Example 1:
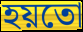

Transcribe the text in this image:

হয়তো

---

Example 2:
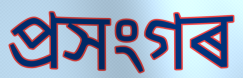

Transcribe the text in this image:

প্ৰসংগৰ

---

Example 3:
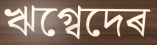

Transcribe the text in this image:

ঋগ্বেদেৰ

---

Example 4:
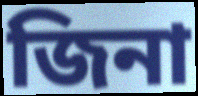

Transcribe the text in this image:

জিনা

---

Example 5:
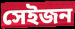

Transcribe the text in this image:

সেইজন